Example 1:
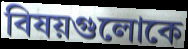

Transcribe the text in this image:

বিষয়গুলোকে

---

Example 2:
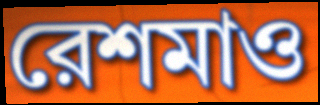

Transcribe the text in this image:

রেশমাও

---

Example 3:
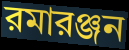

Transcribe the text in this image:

রমারঞ্জন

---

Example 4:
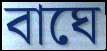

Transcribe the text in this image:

বাঘে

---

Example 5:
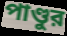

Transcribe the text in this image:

পাণ্ডুর